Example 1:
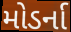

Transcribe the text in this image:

મોડર્ના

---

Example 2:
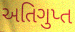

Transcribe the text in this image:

અતિગુપ્ત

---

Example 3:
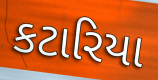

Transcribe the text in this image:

કટારિયા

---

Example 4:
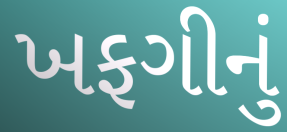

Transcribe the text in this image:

ખફગીનું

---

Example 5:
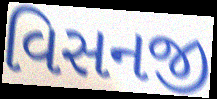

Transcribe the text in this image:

વિસનજી